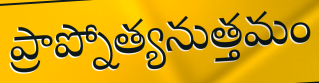
ప్రాప్నోత్యనుత్తమం